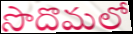
సొదొమలో